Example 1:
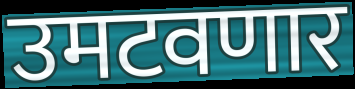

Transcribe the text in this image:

उमटवणार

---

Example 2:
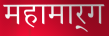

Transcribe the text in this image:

महामार्ग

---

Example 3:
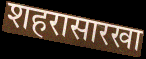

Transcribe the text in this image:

शहरासारखा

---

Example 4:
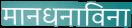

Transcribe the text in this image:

मानधनाविना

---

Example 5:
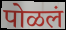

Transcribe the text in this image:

पोळलं